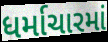
ધર્માચારમાં